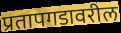
प्रतापगडावरील